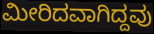
ಮೀರಿದವಾಗಿದ್ದವು